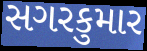
સગરકુમાર